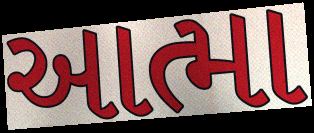
આત્મા